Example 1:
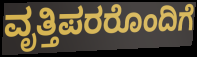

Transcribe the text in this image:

ವೃತ್ತಿಪರರೊಂದಿಗೆ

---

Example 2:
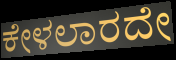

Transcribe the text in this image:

ಕೇಳಲಾರದೇ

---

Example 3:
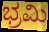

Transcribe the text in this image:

ಭ್ರಮಿ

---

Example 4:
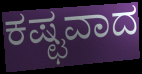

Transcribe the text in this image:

ಕಷ್ಟವಾದ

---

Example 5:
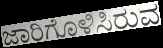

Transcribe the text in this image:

ಜಾರಿಗೊಳಿಸಿರುವ